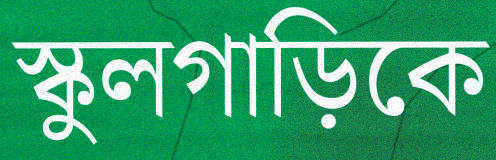
স্কুলগাড়িকে